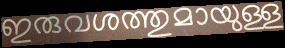
ഇരുവശത്തുമായുള്ള